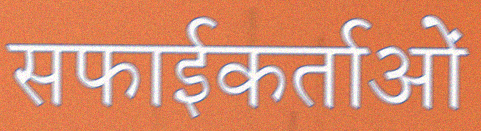
सफाईकर्ताओं